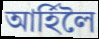
আৰ্হিলৈ